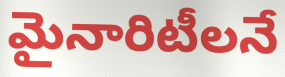
మైనారిటీలనే